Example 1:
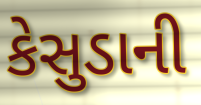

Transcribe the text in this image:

કેસુડાની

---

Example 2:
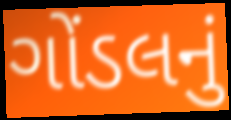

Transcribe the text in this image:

ગોંડલનું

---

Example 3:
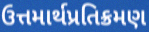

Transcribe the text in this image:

ઉત્તમાર્થપ્રતિક્રમણ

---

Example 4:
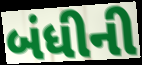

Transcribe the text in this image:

બંધીની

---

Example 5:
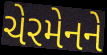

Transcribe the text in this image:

ચેરમેનને